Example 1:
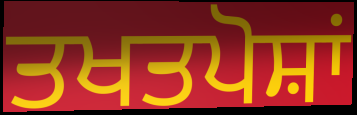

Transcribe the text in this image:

ਤਖਤਪੋਸ਼ਾਂ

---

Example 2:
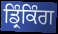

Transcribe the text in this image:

ਡ੍ਰਿੰਕਿੰਗ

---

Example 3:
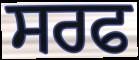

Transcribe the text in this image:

ਸਰਫ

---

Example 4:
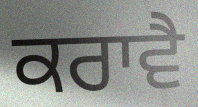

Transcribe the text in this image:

ਕਰਾਵੈ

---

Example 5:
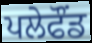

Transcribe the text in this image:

ਪਲੇਫੌਂਡ